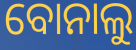
ବୋନାଲୁ